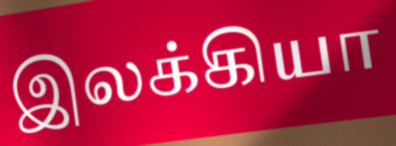
இலக்கியா